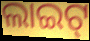
ଲାଇଟ୍